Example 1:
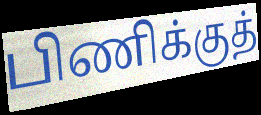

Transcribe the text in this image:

பிணிக்குத்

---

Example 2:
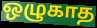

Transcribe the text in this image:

ஒழுகாத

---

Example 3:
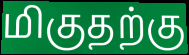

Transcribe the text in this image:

மிகுதற்கு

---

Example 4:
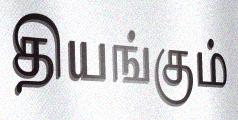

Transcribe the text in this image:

தியங்கும்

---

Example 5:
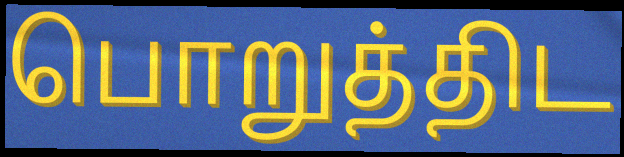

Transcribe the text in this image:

பொறுத்திட